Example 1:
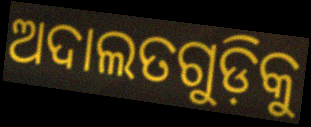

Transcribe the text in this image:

ଅଦାଲତଗୁଡ଼ିକୁ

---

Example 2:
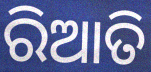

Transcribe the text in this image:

ରିଆତି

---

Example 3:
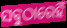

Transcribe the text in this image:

ସବୁଠାରେହିଁ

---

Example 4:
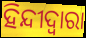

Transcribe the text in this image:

ହିନ୍ଦୀଦ୍ଵାରା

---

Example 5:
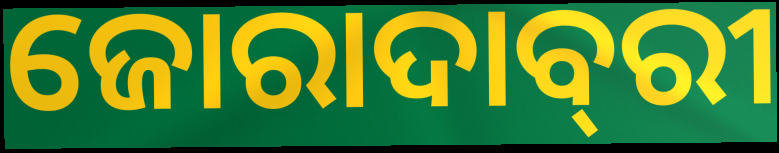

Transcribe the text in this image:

ଜୋରାଦାବ୍‌ରୀ